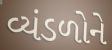
વ્યંડળોને